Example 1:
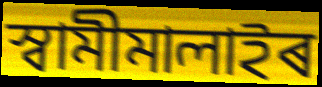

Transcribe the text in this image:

স্বামীমালাইৰ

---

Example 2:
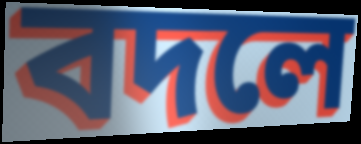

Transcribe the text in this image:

বদলে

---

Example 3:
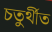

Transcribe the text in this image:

চতুৰ্থীত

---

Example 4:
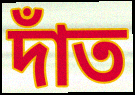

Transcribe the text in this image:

দাঁত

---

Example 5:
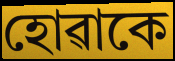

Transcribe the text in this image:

হোৱাকে